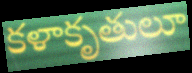
కళాకృతులూ